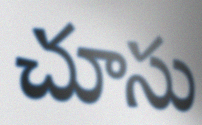
చూసు